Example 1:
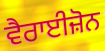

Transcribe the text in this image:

ਵੈਰਾਈਜ਼ੋਨ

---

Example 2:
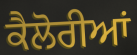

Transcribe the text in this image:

ਕੈਲੋਰੀਆਂ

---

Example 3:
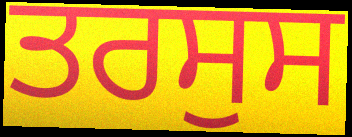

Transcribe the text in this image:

ਤਰਸੁਸ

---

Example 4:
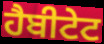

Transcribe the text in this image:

ਹੈਬੀਟੇਟ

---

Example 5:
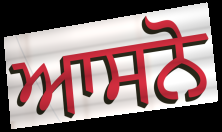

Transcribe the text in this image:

ਆਸਨੋ